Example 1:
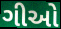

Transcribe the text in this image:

ગીઓ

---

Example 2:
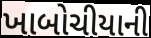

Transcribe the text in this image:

ખાબોચીયાની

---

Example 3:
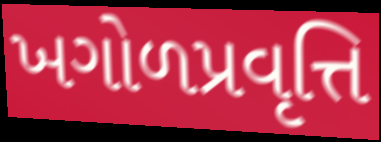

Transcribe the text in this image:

ખગોળપ્રવૃત્તિ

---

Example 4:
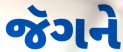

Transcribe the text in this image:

જૅગને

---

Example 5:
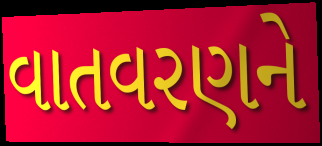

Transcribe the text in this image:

વાતવરણને